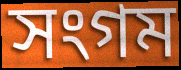
সংগম